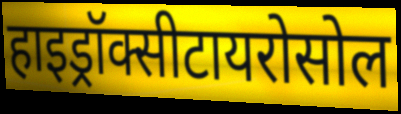
हाइड्रॉक्सीटायरोसोल